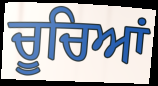
ਚੂਚਿਆਂ